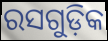
ରସଗୁଡ଼ିକ